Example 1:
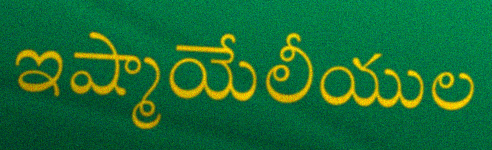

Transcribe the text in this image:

ఇష్మాయేలీయుల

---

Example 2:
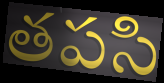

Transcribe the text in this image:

తపసి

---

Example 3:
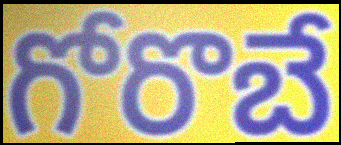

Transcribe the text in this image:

గోరొబే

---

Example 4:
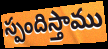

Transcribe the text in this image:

స్పందిస్తాము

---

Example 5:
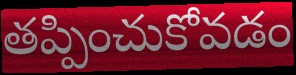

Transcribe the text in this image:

తప్పించుకోవడం